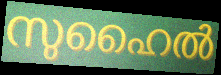
സുഹൈൽ